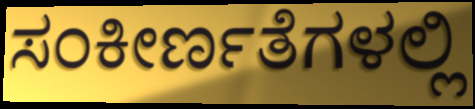
ಸಂಕೀರ್ಣತೆಗಳಲ್ಲಿ